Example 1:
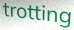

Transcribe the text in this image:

trotting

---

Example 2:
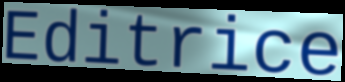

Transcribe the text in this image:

Editrice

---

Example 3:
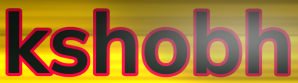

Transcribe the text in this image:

kshobh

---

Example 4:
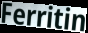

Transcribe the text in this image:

Ferritin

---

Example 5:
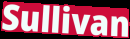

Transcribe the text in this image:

Sullivan